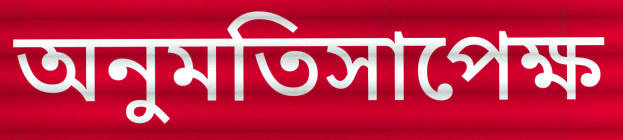
অনুমতিসাপেক্ষ